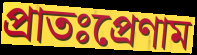
প্রাতঃপ্রেণাম